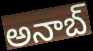
అనాబ్